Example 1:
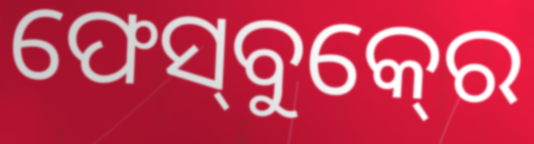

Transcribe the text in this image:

ଫେସ୍‍ବୁକ୍‍ରେ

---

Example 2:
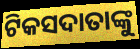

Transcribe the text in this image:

ଟିକସଦାତାଙ୍କୁ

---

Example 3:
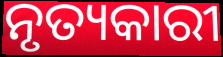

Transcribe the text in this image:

ନୃତ୍ୟକାରୀ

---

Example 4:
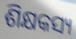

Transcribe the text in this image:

ଶିକ୍ଷକସ୍ୟ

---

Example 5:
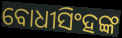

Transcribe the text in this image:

ବୋଧୀସିଂହଙ୍କ